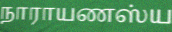
நாராயணஸ்ய